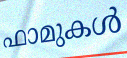
ഫാമുകൾ